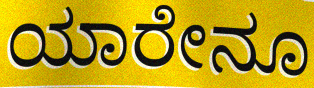
ಯಾರೇನೂ